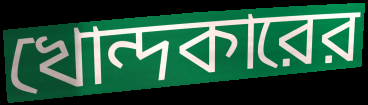
খোন্দকারের